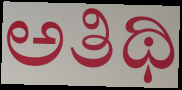
ಅತಿಥಿ